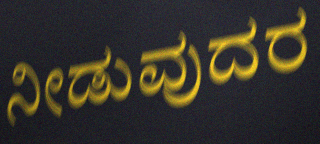
ನೀಡುವುದರ